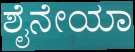
ಶೈನೇಯಾ